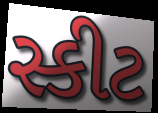
સ્કીટ